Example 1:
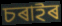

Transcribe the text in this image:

চৰাইৰ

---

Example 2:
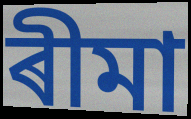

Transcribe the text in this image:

ৰীমা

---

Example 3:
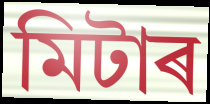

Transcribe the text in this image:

মিটাৰ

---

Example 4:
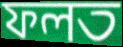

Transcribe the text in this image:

ফলত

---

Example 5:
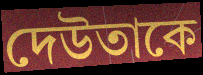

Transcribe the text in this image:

দেউতাকে